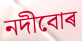
নদীবোৰ